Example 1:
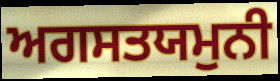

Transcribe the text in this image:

ਅਗਸਤਯਮੁਨੀ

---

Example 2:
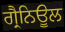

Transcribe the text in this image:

ਗ੍ਰੈਨਿਊਲ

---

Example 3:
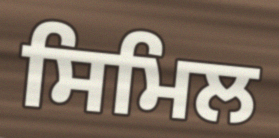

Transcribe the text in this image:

ਸਿਮਿਲ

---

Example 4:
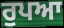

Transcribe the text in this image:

ਰੁਪਆ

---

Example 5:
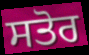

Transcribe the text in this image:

ਸਤੋਰ